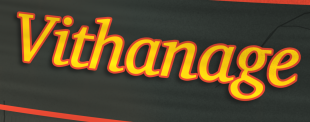
Vithanage